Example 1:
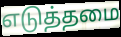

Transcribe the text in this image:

எடுத்தமை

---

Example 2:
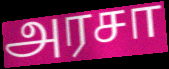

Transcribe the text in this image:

அரசா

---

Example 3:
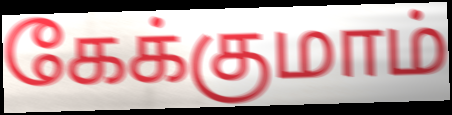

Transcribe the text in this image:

கேக்குமாம்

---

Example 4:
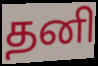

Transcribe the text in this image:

தனி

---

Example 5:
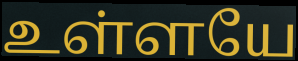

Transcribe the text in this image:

உள்ளயே